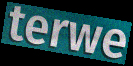
terwe